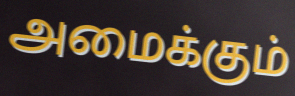
அமைக்கும்